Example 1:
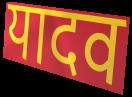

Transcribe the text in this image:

यादव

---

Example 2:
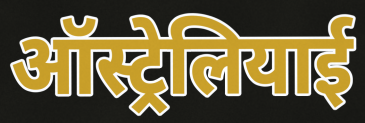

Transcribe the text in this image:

ऑस्ट्रेलियाई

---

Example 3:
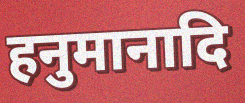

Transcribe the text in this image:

हनुमानादि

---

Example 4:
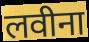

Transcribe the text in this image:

लवीना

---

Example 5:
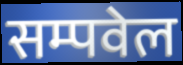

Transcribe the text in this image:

सम्पवेल